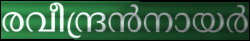
രവീന്ദ്രൻനായർ